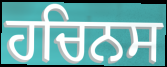
ਹਚਿਨਸ